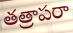
తత్రాపరా